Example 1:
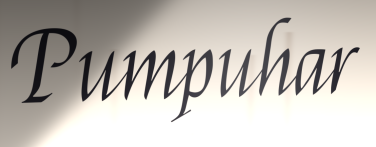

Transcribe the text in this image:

Pumpuhar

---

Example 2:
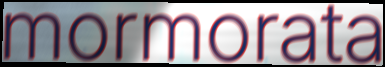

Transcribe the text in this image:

mormorata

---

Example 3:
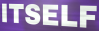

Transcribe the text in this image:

ITSELF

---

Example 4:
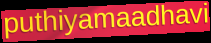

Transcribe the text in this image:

puthiyamaadhavi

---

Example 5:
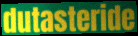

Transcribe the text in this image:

dutasteride